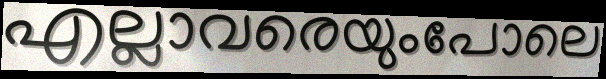
എല്ലാവരെയുംപോലെ